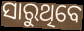
ସାରୁଥିବେ